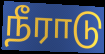
நீராடு